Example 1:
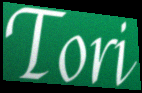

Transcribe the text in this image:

Tori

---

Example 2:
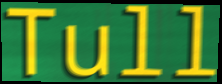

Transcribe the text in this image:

Tull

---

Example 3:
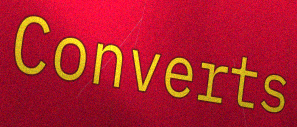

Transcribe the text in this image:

Converts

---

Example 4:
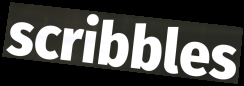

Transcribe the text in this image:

scribbles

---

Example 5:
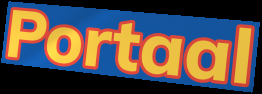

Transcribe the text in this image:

Portaal